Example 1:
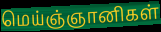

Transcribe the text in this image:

மெய்ஞ்ஞானிகள்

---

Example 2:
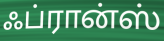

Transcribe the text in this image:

ஃப்ரான்ஸ்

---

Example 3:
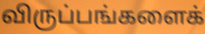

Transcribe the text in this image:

விருப்பங்களைக்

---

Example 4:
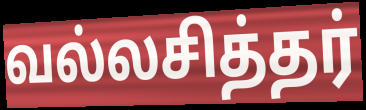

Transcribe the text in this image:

வல்லசித்தர்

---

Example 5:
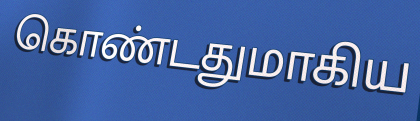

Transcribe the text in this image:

கொண்டதுமாகிய